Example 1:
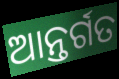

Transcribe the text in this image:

ଆନ୍ତର୍ଗତ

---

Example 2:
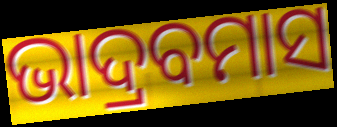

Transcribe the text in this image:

ଭାଦ୍ରବମାସ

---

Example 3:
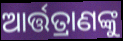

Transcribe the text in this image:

ଆର୍ତ୍ତତ୍ରାଣଙ୍କୁ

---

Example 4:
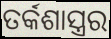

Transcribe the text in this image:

ତର୍କଶାସ୍ତ୍ରର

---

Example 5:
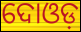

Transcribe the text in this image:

ଦୋଓଡ଼